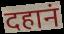
दहानं